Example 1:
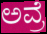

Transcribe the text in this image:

ಅವ್ರೆ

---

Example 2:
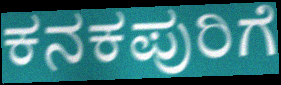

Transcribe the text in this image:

ಕನಕಪುರಿಗೆ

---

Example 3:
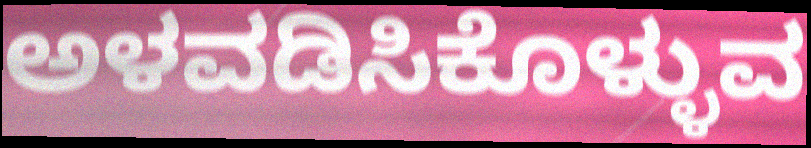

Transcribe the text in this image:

ಅಳವಡಿಸಿಕೊಳ್ಳುವ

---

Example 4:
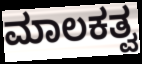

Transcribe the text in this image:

ಮಾಲಕತ್ವ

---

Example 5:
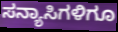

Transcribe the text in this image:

ಸನ್ಯಾಸಿಗಳಿಗೂ